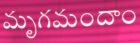
మృగమందాం